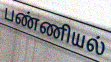
பண்ணியல்